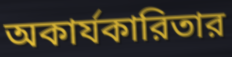
অকার্যকারিতার